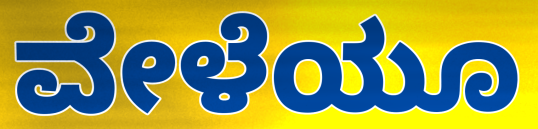
ವೇಳೆಯೂ